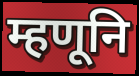
म्हणूनि